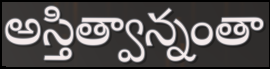
అస్తిత్వాన్నంతా